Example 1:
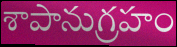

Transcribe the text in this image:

శాపానుగ్రహం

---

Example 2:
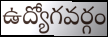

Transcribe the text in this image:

ఉద్యోగవర్గం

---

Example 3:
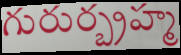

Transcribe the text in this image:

గురుర్బ్రహ్మ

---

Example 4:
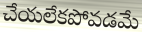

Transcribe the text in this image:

చేయలేకపోవడమే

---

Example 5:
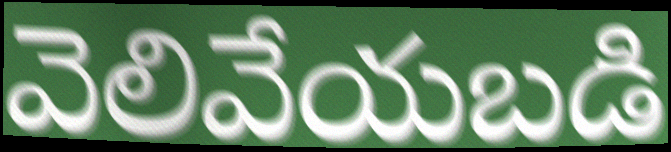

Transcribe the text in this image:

వెలివేయబడి